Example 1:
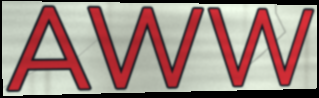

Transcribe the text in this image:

AWW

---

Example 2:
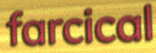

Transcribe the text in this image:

farcical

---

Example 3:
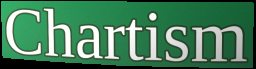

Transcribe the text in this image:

Chartism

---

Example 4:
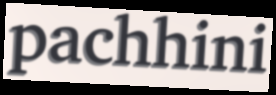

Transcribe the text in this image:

pachhini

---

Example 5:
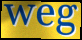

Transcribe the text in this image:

weg